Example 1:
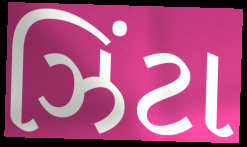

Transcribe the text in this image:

ઝિંટા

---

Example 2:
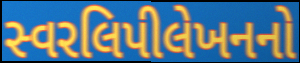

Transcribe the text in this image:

સ્વરલિપીલેખનનો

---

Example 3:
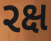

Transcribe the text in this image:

રક્ષ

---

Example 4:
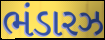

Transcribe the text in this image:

ભંડારઝ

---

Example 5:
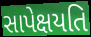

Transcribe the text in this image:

સાપેક્ષયતિ